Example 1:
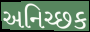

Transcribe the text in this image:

અનિચ્છક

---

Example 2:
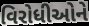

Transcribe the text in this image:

વિરોધીઓને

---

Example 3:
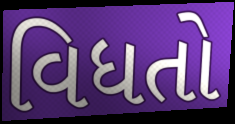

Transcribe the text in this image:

વિધતો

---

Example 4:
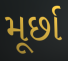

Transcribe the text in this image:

મૂર્છા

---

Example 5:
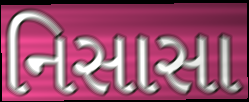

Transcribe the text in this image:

નિસાસા